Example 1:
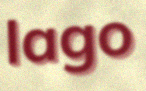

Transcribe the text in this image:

Iago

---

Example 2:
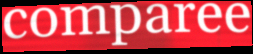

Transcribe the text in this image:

comparee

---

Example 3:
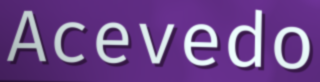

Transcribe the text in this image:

Acevedo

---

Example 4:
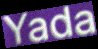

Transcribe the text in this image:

Yada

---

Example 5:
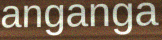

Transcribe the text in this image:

anganga